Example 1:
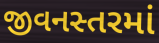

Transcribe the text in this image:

જીવનસ્તરમાં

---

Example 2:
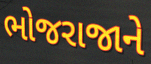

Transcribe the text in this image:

ભોજરાજાને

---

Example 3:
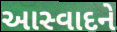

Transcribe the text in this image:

આસ્વાદને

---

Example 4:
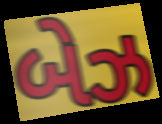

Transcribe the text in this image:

બેઝ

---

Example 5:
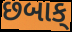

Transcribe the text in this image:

છબાક્